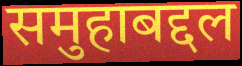
समुहाबद्दल